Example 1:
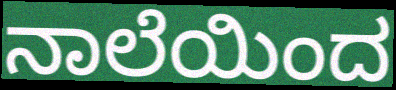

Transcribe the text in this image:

ನಾಲೆಯಿಂದ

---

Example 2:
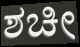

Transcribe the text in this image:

ಶಚೀ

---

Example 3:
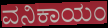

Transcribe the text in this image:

ವನಿಕಾಯಂ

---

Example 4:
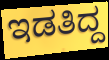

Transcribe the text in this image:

ಇಡತಿದ್ದ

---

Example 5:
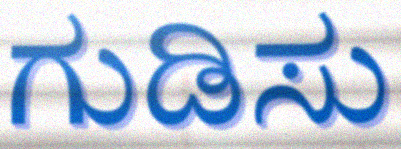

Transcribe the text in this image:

ಗುಡಿಸು